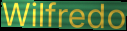
Wilfredo